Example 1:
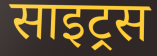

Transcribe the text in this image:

साइट्रस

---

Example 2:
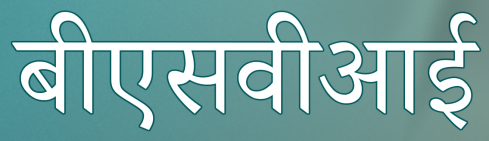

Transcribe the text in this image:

बीएसवीआई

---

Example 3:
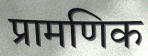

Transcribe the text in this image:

प्रामणिक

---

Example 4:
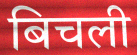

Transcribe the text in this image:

बिचली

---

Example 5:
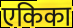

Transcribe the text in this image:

एकिका